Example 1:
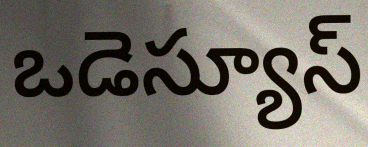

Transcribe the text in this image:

ఒడెస్యూస్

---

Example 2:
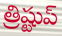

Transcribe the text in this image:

త్రిష్టుప్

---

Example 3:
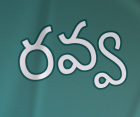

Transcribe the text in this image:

రవ్వ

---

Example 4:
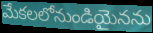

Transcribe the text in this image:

మేకలలోనుండియైనను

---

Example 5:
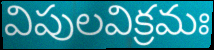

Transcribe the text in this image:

విపులవిక్రమః